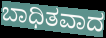
ಬಾಧಿತವಾದ